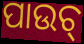
ପାଉଚ୍